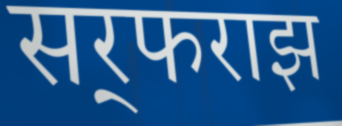
सर्फराझ